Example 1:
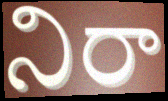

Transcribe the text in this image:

నిరా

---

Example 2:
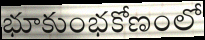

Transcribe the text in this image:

భూకుంభకోణంలో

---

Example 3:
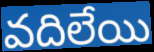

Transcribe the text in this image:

వదిలేయి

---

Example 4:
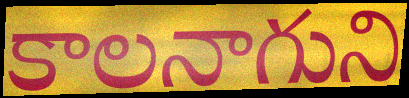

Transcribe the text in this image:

కాలనాగుని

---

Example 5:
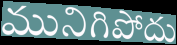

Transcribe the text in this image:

మునిగిపోదు